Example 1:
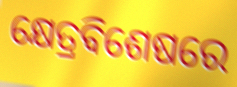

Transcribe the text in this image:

କ୍ଷେତ୍ରବିଶେଷରେ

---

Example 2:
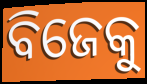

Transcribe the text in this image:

ବିଜେକୁ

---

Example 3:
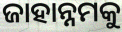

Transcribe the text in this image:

ଜାହାନ୍ନମକୁ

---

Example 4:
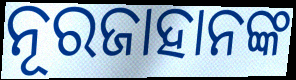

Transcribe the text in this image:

ନୂରଜାହାନଙ୍କ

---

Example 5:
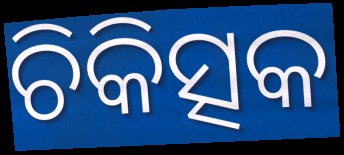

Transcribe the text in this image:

ଚିକିତ୍ସକ